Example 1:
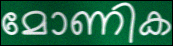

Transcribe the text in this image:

മോണിക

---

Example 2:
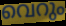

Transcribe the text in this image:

വെറും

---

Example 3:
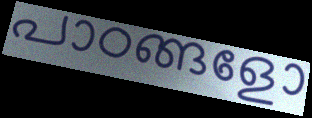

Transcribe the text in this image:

പാഠങ്ങളോ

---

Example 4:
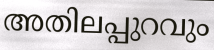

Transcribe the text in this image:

അതിലപ്പുറവും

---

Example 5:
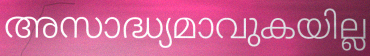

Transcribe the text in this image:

അസാദ്ധ്യമാവുകയില്ല